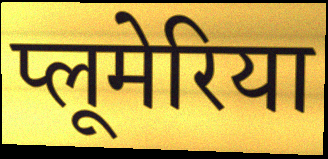
प्लूमेरिया